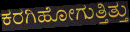
ಕರಗಿಹೋಗುತ್ತಿತ್ತು